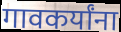
गावकर्यांना